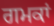
ਗਮਕਾਂ